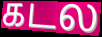
கடல